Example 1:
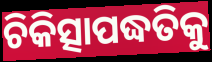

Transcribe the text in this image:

ଚିକିତ୍ସାପଦ୍ଧତିକୁ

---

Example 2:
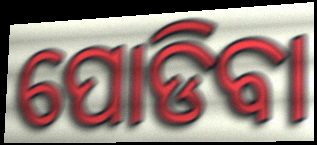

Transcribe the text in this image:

ପୋଡିବା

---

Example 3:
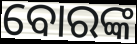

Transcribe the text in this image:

ବୋରଙ୍କ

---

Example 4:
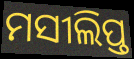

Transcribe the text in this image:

ମସୀଲିପ୍ତ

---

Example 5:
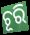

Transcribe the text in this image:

ଚୂରି